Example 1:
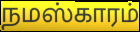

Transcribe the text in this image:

நமஸ்காரம்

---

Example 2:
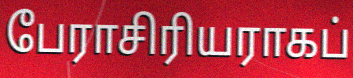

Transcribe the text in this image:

பேராசிரியராகப்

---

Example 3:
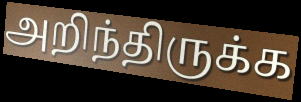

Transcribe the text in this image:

அறிந்திருக்க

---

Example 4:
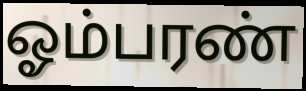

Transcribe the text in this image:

ஓம்பரண்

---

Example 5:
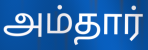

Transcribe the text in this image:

அம்தார்